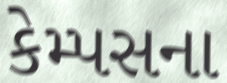
કેમ્પસના